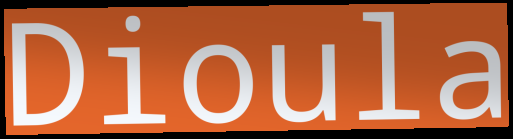
Dioula